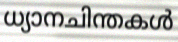
ധ്യാനചിന്തകൾ